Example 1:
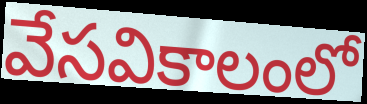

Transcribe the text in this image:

వేసవికాలంలో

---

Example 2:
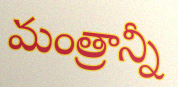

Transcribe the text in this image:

మంత్రాన్నీ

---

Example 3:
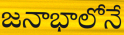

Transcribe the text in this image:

జనాభాలోనే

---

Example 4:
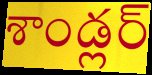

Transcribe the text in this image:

శాండ్లర్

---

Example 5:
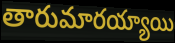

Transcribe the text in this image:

తారుమారయ్యాయి